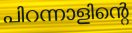
പിറന്നാളിന്റെ